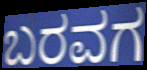
ಬರವಗ